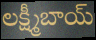
లక్ష్మీబాయ్